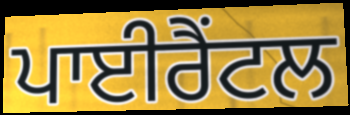
ਪਾਈਰੈਂਟਲ